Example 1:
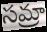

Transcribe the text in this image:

సమ్రా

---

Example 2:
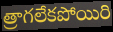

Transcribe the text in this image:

త్రాగలేకపోయిరి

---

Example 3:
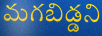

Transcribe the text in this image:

మగబిడ్డని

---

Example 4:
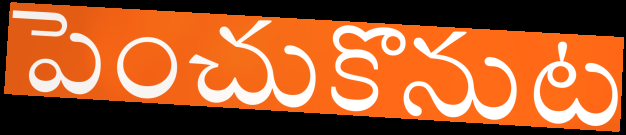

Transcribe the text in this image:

పెంచుకొనుట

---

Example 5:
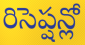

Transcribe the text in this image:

రిసెప్షన్లో